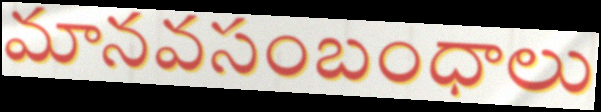
మానవసంబంధాలు